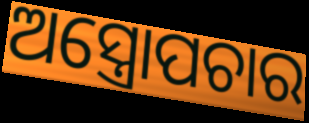
ଅସ୍ତ୍ରୋପଚାର